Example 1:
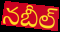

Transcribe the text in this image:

నబీల్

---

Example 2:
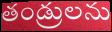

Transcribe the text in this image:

తండ్రులను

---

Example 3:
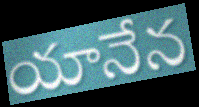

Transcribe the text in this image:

యానేన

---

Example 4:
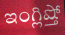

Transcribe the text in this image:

ఇంగ్లిష్తో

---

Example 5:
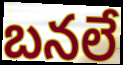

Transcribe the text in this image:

బనలే